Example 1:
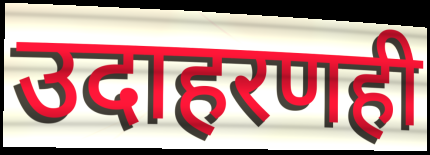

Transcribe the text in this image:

उदाहरणही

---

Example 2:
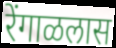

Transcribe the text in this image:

रेंगाळलास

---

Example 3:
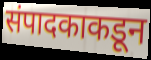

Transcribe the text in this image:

संपादकाकडून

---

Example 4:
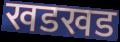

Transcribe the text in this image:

खडखड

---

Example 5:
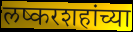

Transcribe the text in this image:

लष्करशहांच्या